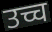
उच्च